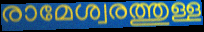
രാമേശ്വരത്തുള്ള